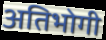
अतिभोगी